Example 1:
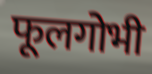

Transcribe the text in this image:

फूलगोभी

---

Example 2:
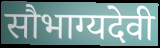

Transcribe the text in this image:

सौभाग्यदेवी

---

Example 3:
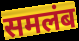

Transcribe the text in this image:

समलंब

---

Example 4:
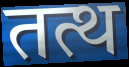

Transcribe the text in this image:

तत्थ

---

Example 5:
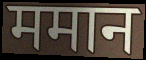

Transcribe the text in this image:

ममान